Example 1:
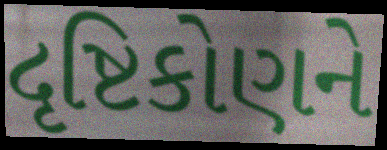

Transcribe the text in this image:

દૃષ્ટિકોણને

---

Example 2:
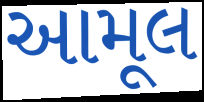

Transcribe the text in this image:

આમૂલ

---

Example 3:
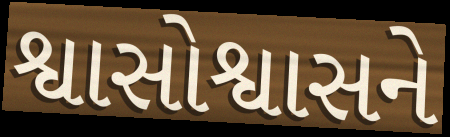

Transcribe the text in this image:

શ્વાસોશ્વાસને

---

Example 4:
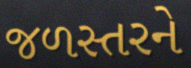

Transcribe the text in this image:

જળસ્તરને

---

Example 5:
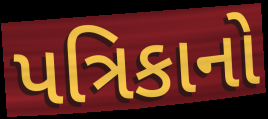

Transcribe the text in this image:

પત્રિકાનો